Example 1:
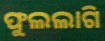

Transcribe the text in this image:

ଫୁଲଲାଗି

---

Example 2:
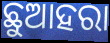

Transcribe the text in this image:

ଛୁଆହରା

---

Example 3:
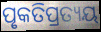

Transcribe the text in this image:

ପୃକତିପ୍ରତ୍ୟୟ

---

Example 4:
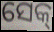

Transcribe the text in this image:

ସେକ୍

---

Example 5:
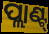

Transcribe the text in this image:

ପ୍ଲାଣ୍ଟ୍